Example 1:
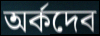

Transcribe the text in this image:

অর্কদেব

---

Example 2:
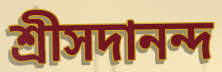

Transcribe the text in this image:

শ্রীসদানন্দ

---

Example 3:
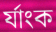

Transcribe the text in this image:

র্যাংক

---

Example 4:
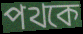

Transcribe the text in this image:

পথকে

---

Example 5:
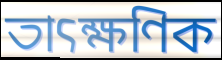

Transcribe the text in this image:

তাৎক্ষণিক